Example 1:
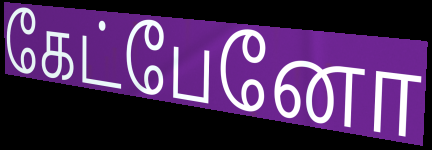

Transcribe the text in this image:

கேட்பேனோ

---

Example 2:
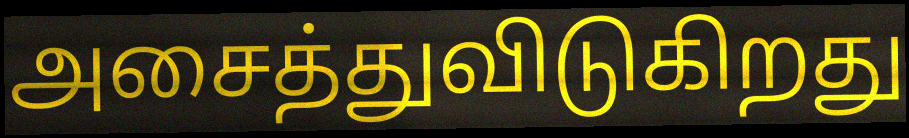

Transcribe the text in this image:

அசைத்துவிடுகிறது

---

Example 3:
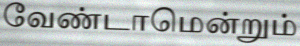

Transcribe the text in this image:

வேண்டாமென்றும்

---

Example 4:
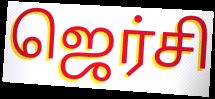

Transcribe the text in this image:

ஜெர்சி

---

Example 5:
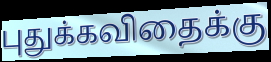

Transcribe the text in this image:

புதுக்கவிதைக்கு